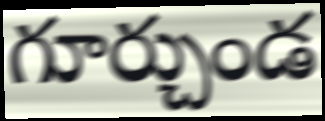
గూర్చుండ